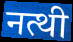
नत्थी